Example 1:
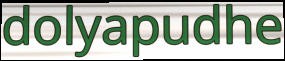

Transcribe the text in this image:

dolyapudhe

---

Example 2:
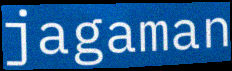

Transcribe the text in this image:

jagaman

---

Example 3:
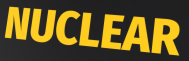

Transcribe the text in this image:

NUCLEAR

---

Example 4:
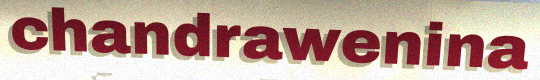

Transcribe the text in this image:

chandrawenina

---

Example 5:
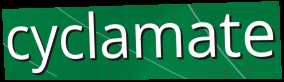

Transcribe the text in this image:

cyclamate